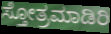
ಸ್ತೋತ್ರಮಾಡಿರಿ